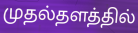
முதல்தளத்தில்